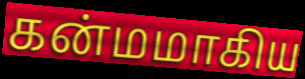
கன்மமாகிய